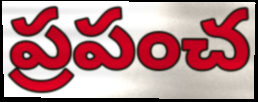
ప్రపంచ